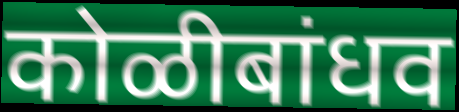
कोळीबांधव